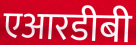
एआरडीबी